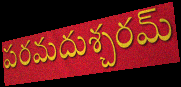
పరమదుశ్చరమ్